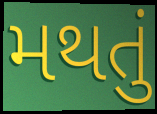
મથતું